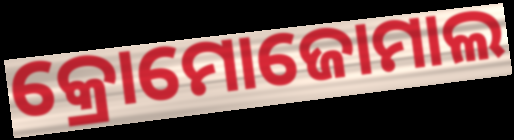
କ୍ରୋମୋଜୋମାଲ